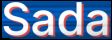
Sada